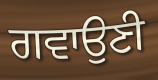
ਗਵਾਉਣੀ